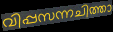
വിപ്പസന്നചിത്താ